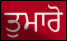
ਤੁਮਾਰੋ